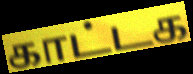
காட்டக